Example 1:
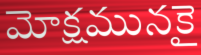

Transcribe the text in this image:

మోక్షమునకై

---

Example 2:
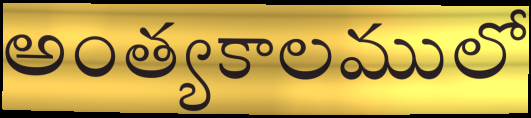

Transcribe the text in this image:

అంత్యకాలములో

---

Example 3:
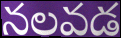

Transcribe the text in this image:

నలవడ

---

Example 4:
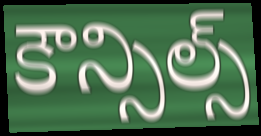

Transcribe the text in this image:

కౌన్సిల్స్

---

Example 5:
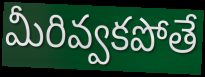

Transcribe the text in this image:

మీరివ్వకపోతే